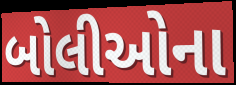
બોલીઓના